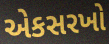
એકસરખો